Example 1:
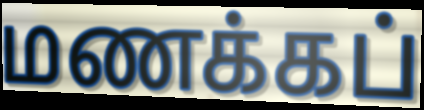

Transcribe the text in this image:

மணக்கப்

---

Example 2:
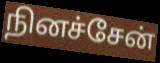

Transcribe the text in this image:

நினச்சேன்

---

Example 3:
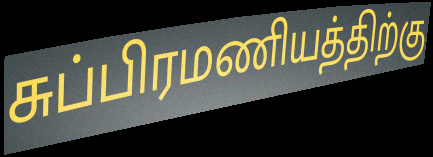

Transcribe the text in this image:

சுப்பிரமணியத்திற்கு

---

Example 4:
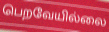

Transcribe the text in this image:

பெறவேயில்லை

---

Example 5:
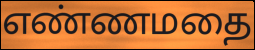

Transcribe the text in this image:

எண்ணமதை